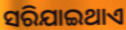
ସରିଯାଇଥାଏ